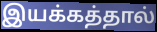
இயக்கத்தால்